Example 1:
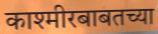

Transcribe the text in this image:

काश्मीरबाबतच्या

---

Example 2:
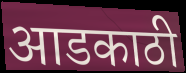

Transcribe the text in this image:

आडकाठी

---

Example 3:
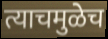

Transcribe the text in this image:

त्याचमुळेच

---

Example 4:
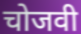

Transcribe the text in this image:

चोजवी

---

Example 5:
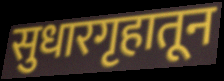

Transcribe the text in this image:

सुधारगृहातून